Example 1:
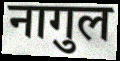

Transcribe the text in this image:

नागुल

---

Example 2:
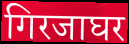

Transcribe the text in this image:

गिरजाघर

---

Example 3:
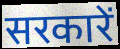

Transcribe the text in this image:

सरकारें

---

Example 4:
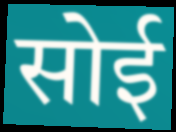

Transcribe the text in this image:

सोई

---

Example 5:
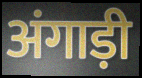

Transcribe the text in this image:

अंगाड़ी